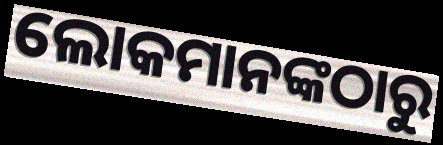
ଲୋକମାନଙ୍କଠାରୁ